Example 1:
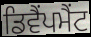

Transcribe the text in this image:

ਡਿਵੈਂਪਮੈਂਟ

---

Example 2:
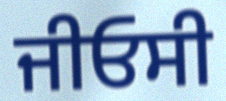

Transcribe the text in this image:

ਜੀਓਸੀ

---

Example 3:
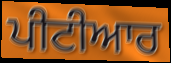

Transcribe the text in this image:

ਪੀਟੀਆਰ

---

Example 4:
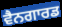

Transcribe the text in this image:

ਵੈਨਗਾਰਡ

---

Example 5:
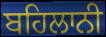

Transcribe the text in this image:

ਬਹਿਲਾਨੀ